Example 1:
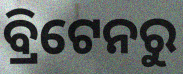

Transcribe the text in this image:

ବ୍ରିଟେନରୁ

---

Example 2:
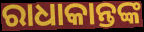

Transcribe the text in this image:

ରାଧାକାନ୍ତଙ୍କ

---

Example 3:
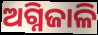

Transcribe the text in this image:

ଅଗ୍ନିଜାଳି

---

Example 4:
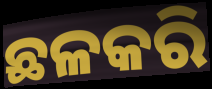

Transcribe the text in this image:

ଛଳକରି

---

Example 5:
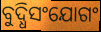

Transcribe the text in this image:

ବୁଦ୍ଧିସଂଯୋଗଂ